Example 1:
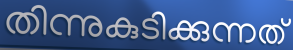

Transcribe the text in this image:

തിന്നുകുടിക്കുന്നത്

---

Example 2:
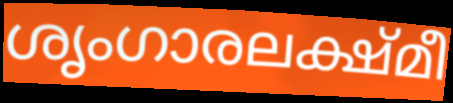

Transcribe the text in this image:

ശൃംഗാരലക്ഷ്മീ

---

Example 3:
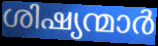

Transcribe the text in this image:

ശിഷ്യന്മാർ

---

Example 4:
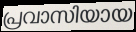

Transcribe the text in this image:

പ്രവാസിയായ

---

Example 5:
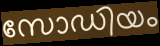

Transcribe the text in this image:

സോഡിയം